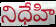
నిధేహి